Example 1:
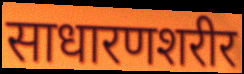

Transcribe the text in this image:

साधारणशरीर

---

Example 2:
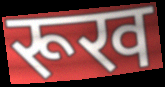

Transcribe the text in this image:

रूख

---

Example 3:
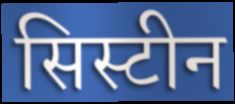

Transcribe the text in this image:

सिस्टीन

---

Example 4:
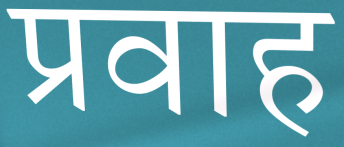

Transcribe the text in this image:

प्रवाह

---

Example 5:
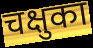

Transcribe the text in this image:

चक्षुका